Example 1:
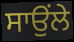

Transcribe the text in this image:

ਸਾਉਂਲੇ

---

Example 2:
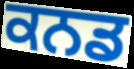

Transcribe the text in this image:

ਕਨਡ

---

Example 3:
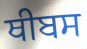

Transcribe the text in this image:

ਥੀਬਸ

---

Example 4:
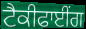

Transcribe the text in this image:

ਟੈਕੀਫਾਈਂਗ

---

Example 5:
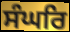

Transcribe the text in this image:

ਸੰਘਰਿ